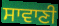
ਸਾਵਾਣੀ